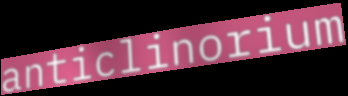
anticlinorium